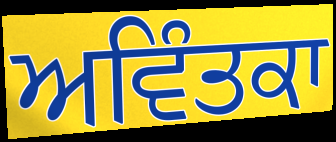
ਅਵਿੰਤਕਾ